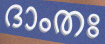
ദാംതഃ